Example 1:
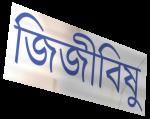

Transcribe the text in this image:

জিজীবিষু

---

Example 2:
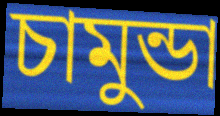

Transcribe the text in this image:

চামুন্ডা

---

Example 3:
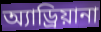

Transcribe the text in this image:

অ্যাড্রিয়ানা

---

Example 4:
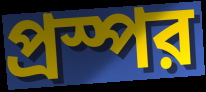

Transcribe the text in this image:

প্রস্পর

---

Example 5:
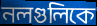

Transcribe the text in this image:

নলগুলিকে